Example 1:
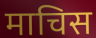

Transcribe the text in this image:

माचिस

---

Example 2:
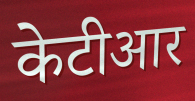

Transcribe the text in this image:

केटीआर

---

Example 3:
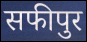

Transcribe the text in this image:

सफीपुर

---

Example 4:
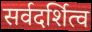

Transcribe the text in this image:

सर्वदर्शित्व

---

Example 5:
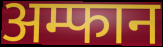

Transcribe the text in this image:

अम्‍फान